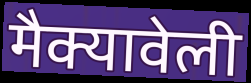
मैक्यावेली